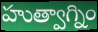
హుత్వాగ్నిం